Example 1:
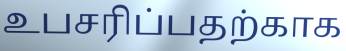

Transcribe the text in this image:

உபசரிப்பதற்காக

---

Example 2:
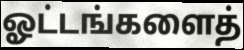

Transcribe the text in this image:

ஓட்டங்களைத்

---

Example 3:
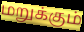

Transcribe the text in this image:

மறுக்கும்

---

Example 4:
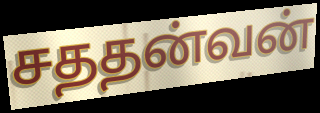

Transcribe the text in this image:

சததன்வன்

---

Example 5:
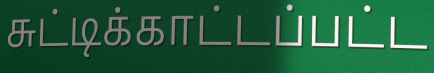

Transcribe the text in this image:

சுட்டிக்காட்டப்பட்ட